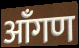
आँगण